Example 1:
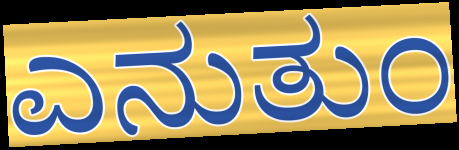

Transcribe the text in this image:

ಎನುತುಂ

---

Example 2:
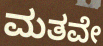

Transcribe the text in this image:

ಮತವೇ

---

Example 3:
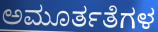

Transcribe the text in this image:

ಅಮೂರ್ತತೆಗಳ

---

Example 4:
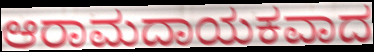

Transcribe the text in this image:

ಆರಾಮದಾಯಕವಾದ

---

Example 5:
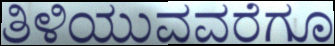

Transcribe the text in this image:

ತಿಳಿಯುವವರೆಗೂ